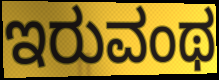
ಇರುವಂಥ